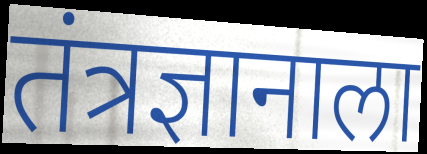
तंत्रज्ञानाला